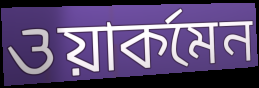
ওয়ার্কমেন